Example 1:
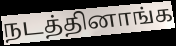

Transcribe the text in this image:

நடத்தினாங்க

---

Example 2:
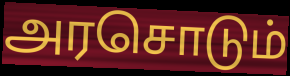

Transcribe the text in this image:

அரசொடும்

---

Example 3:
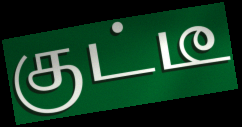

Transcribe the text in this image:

குட்டீ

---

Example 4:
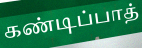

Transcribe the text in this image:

கண்டிப்பாத்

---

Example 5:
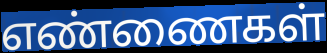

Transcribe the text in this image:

எண்ணைகள்